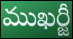
ముఖర్జీ